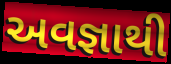
અવજ્ઞાથી